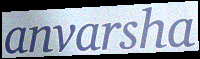
anvarsha